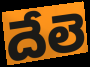
దేలె